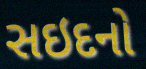
સઇદનો